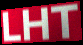
LHT